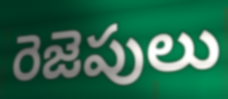
రెజెపులు